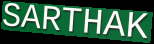
SARTHAK